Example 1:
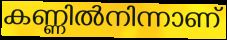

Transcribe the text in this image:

കണ്ണിൽനിന്നാണ്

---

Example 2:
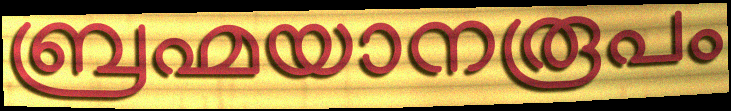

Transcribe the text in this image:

ബ്രഹ്മയാനരൂപം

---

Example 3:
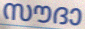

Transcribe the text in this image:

സൗദാ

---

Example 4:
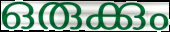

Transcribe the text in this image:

ഒരുക്കും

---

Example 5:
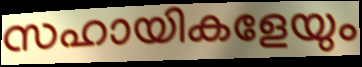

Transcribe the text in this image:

സഹായികളേയും